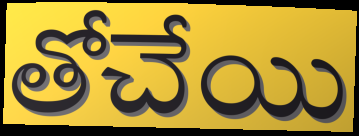
తోచేయి